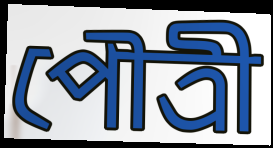
পৌত্রী